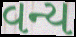
વન્ય